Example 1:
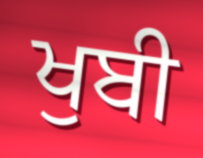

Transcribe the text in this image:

ਖੁਬੀ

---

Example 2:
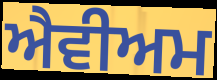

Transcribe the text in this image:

ਐਵੀਅਮ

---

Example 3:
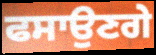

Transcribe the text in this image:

ਫਸਾਉਣਗੇ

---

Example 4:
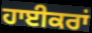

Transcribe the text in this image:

ਹਾਈਕਰਾਂ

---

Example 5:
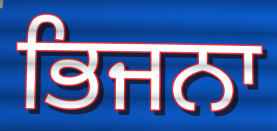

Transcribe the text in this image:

ਭਿਜਨਾ